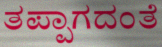
ತಪ್ಪಾಗದಂತೆ